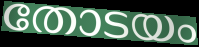
തോടയം